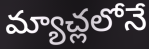
మ్యాచ్లలోనే